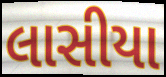
લાસીયા